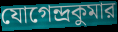
যোগেন্দ্রকুমার